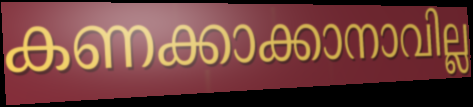
കണക്കാക്കാനാവില്ല